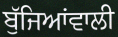
ਬੁੱਜਿਆਂਵਾਲੀ